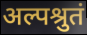
अल्पश्रुतं